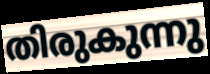
തിരുകുന്നു